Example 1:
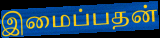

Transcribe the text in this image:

இமைப்பதன்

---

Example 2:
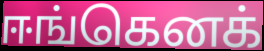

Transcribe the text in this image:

ஈங்கெனக்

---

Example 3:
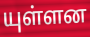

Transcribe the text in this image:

யுள்ளன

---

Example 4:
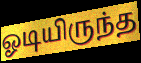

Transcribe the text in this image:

ஓடியிருந்த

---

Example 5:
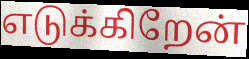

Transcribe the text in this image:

எடுக்கிறேன்